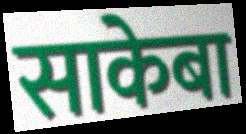
साकेबा